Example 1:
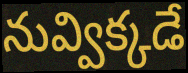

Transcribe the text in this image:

నువ్విక్కడే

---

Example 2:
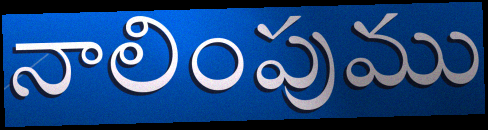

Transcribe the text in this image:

నాలింపుము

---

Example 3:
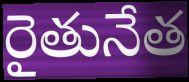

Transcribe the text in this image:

రైతునేత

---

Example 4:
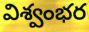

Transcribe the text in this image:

విశ్వంభర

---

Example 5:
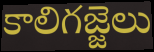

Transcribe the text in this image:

కాలిగజ్జెలు